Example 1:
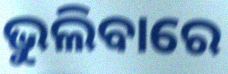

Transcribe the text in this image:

ଭୁଲିବାରେ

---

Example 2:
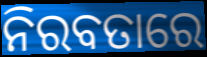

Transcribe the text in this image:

ନିରବତାରେ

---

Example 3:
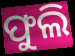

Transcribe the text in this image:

ଫୁଲି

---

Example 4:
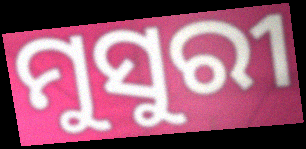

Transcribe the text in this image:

ମୁସୁରୀ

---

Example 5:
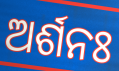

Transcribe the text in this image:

ଅର୍ଶନଃ